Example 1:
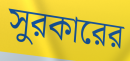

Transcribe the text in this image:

সুরকারের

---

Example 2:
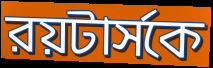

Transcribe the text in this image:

রয়টার্সকে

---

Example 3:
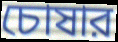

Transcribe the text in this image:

চোষার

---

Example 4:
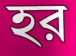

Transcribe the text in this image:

হর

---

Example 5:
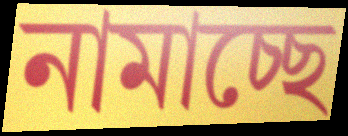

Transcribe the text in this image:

নামাচ্ছে